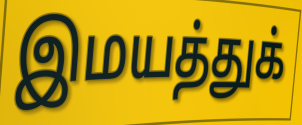
இமயத்துக்